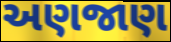
અણજાણ